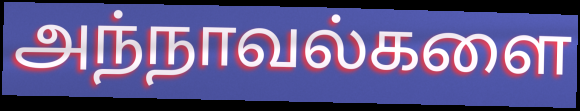
அந்நாவல்களை